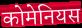
कोमेनियस